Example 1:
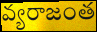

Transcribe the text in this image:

వ్యరాజంత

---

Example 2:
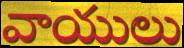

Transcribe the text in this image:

వాయులు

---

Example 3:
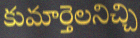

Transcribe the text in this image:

కుమార్తెలనిచ్చి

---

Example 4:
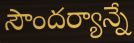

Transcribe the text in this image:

సౌందర్యాన్నే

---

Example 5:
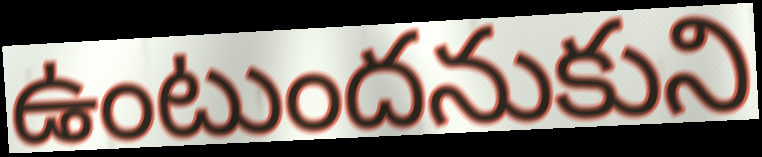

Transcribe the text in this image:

ఉంటుందనుకుని